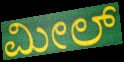
ಮೀಲ್